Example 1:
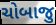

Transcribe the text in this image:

ચોબાજુ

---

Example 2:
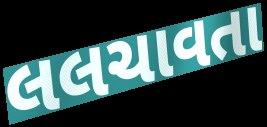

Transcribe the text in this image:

લલચાવતા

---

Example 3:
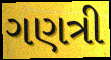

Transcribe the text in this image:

ગણત્રી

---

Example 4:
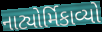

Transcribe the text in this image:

નાટ્યોર્મિકાવ્યો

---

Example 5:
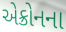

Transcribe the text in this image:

એક્રોનના